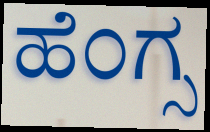
ಹೆಂಗ್ಸ